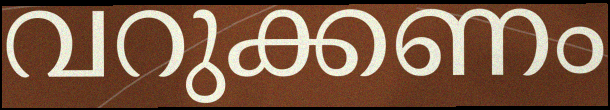
വറുക്കണം